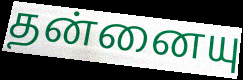
தன்னையு